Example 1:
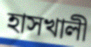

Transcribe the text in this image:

হাসখালী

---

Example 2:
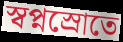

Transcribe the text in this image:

স্বপ্নস্রোতে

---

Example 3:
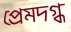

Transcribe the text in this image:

প্রেমদগ্ধ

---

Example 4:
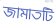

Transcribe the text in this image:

জামাতটি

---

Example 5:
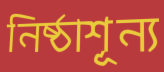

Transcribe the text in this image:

নিষ্ঠাশূন্য